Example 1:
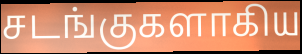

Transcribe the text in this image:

சடங்குகளாகிய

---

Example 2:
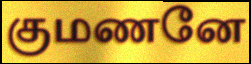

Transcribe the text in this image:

குமணனே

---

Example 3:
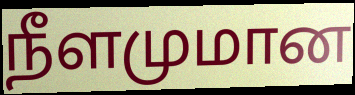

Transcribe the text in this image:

நீளமுமான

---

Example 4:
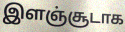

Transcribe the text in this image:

இளஞ்சூடாக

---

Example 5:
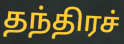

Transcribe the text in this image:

தந்திரச்